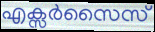
എക്സർസൈസ്